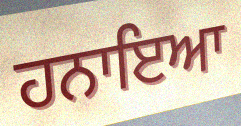
ਹਨਾਇਆ